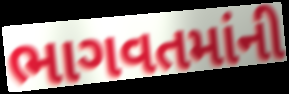
ભાગવતમાંની